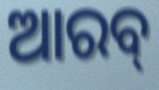
ଆରବ୍